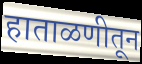
हाताळणीतून